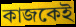
কাজকেই